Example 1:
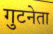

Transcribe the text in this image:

गुटनेता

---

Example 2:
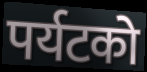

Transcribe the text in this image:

पर्यटको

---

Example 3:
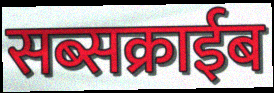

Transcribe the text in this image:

सब्सक्राईब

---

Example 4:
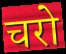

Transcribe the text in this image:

चरो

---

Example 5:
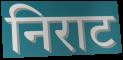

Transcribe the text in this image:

निराट